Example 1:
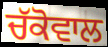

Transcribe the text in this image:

ਚੱਕੋਵਾਲ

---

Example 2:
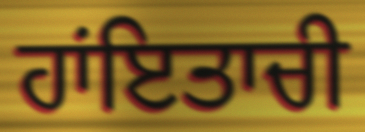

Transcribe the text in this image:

ਹਾਂਇਤਾਚੀ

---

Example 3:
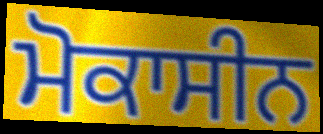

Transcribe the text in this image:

ਮੋਕਾਸੀਨ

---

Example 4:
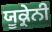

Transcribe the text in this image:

ਯੂਕ੍ਰੇਨੀ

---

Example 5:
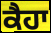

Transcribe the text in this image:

ਕੈਹਾ